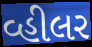
વ્હીલર